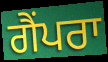
ਗੈਂਪਰਾ